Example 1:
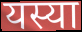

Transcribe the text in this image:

यस्या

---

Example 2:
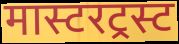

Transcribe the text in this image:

मास्टरट्रस्ट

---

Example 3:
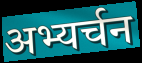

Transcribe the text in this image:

अभ्यर्चन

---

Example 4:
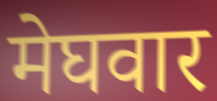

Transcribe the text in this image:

मेघवार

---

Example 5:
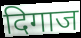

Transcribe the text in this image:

दिगाज